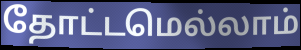
தோட்டமெல்லாம்